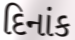
દિનાંક